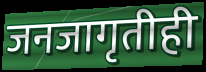
जनजागृतीही